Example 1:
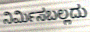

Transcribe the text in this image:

ನಿರ್ಮಿಸಬಲ್ಲದು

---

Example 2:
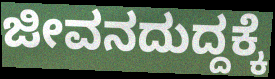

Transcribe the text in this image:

ಜೀವನದುದ್ದಕ್ಕೆ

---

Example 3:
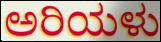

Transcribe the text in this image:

ಅರಿಯಳು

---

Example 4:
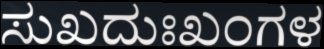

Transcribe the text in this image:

ಸುಖದುಃಖಂಗಳ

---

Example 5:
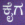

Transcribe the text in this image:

ಕೈಗ